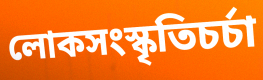
লোকসংস্কৃতিচর্চা